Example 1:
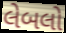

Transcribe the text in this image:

લેબલો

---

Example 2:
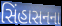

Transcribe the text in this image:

સિંહાસનના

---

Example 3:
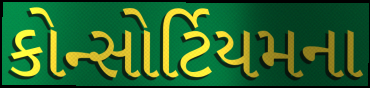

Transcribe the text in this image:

કોન્સોર્ટિયમના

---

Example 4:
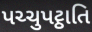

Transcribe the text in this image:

પચ્ચુપટ્ઠાતિ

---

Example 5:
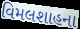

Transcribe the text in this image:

વિમલશાહના